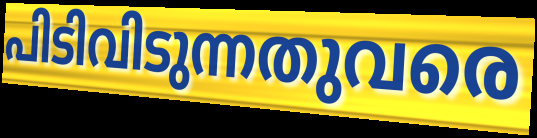
പിടിവിടുന്നതുവരെ